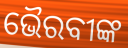
ଭୈରବୀଙ୍କ